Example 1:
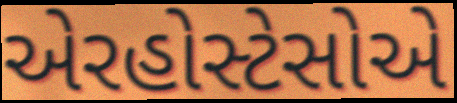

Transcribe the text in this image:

એરહોસ્ટેસોએ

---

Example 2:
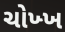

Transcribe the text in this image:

ચોખ્ખ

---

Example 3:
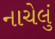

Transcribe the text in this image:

નાચેલું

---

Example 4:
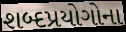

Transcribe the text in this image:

શબ્દપ્રયોગોના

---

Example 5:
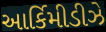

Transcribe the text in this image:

આર્કિમીડીઝે